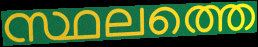
സ്ഥലത്തെ